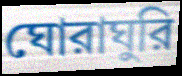
ঘোরাঘুরি